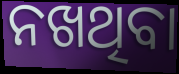
ନଖଥିବା